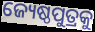
ଜ୍ୟେଷ୍ଠପୁତ୍ରକୁ